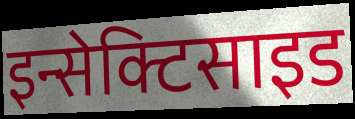
इन्सेक्टिसाइड